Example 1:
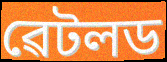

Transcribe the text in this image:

ৱেটলড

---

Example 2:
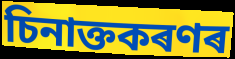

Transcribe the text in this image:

চিনাক্তকৰণৰ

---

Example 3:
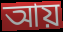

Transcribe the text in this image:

আয়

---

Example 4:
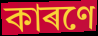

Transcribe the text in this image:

কাৰণে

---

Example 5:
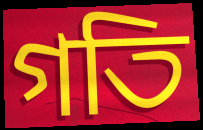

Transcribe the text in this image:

গতি